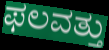
ಫಲವತ್ತು